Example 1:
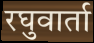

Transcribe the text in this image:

रघुवार्ता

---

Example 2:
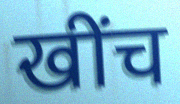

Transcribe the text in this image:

खींच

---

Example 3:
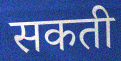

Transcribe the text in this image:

सकती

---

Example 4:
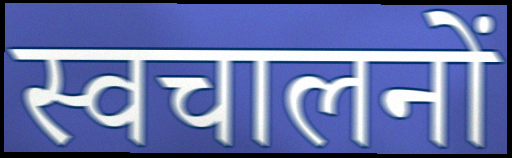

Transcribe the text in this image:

स्वचालनों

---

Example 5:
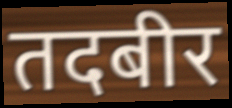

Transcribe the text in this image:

तदबीर